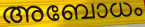
അബോധം